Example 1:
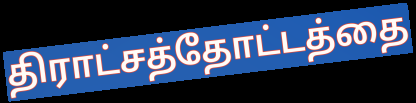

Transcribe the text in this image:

திராட்சத்தோட்டத்தை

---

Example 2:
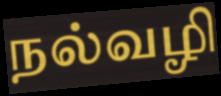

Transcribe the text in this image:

நல்வழி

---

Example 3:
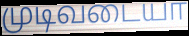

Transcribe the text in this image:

முடிவடையா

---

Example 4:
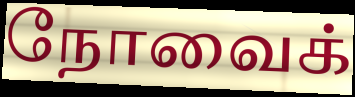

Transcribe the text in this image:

நோவைக்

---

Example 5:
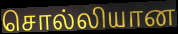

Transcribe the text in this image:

சொல்லியான